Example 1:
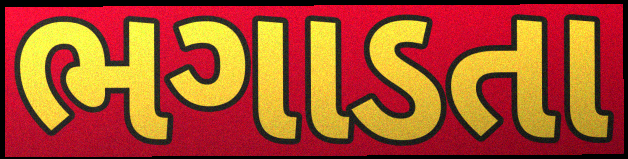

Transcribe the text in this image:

ભગાડતા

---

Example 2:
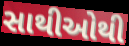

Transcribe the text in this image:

સાથીઓથી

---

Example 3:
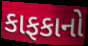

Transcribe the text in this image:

કાફકાનો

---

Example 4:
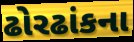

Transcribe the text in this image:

ઢોરઢાંકના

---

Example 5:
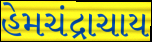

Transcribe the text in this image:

હેમચંદ્રાચાય